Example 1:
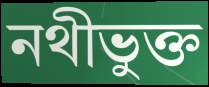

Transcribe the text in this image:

নথীভুক্ত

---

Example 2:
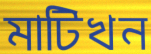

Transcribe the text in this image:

মাটিখন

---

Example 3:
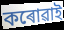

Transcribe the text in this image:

কৰোৱাই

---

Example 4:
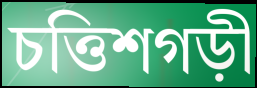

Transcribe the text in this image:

চত্তিশগড়ী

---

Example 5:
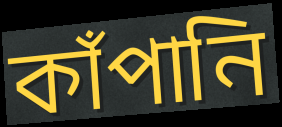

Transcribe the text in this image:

কাঁপানি